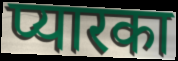
प्यारका